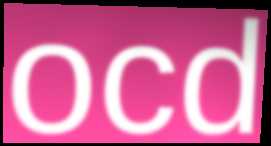
ocd